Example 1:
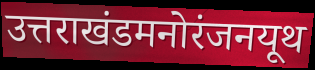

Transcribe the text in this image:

उत्तराखंडमनोरंजनयूथ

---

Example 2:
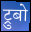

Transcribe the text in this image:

ट्रुबो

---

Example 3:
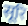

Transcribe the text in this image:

सूरि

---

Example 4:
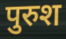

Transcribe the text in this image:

पुरुश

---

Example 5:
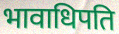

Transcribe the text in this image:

भावाधिपति